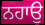
ਨਹਾਉ